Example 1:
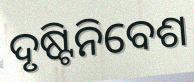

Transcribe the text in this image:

ଦୃଷ୍ଟିନିବେଶ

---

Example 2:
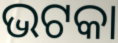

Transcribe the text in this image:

ଭଟକା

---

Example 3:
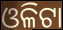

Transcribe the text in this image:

ଓଳିଟା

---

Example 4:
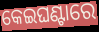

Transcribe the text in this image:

କେଇଘଣ୍ଟାରେ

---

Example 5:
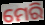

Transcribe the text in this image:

ମେରି